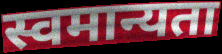
स्वमान्यता